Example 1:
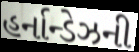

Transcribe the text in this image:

હર્નાન્ડેઝની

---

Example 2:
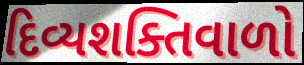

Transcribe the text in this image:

દિવ્યશક્તિવાળો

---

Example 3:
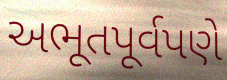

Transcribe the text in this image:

અભૂતપૂર્વપણે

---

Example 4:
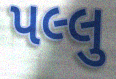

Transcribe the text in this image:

પલ્લુ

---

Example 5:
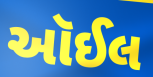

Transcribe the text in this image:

ઑઈલ